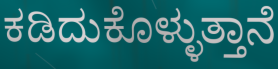
ಕಡಿದುಕೊಳ್ಳುತ್ತಾನೆ